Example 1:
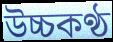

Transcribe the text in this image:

উচ্চকণ্ঠ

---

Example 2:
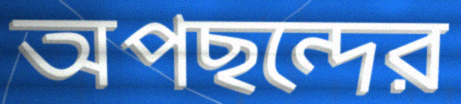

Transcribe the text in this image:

অপছন্দের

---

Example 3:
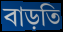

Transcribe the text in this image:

বাড়তি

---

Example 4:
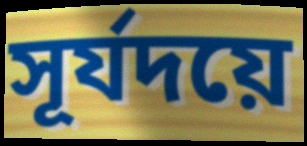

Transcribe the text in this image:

সূর্যদয়ে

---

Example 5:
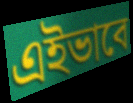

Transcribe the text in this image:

এইভাবে